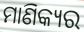
ମାଣିକ୍ୟର